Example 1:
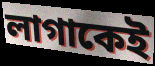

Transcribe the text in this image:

লাগাকেই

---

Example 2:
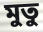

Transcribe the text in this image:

মুতু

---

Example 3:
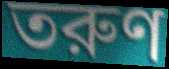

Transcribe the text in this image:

তরুণ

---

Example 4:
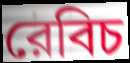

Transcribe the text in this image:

রেবিচ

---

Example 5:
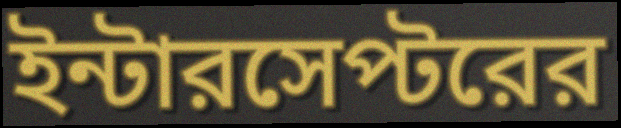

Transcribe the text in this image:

ইন্টারসেপ্টরের